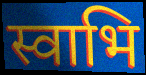
स्वाभि